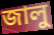
জালু